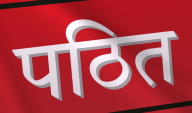
पठित